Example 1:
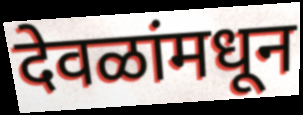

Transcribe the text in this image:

देवळांमधून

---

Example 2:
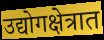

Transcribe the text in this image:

उद्योगक्षेत्रात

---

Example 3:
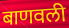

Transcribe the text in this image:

बाणवली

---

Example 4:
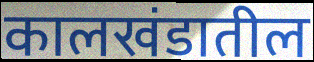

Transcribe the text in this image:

कालखंडातील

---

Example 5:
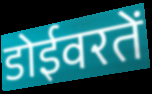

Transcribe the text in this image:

डोईवरतें